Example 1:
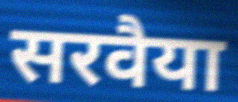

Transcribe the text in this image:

सरवैया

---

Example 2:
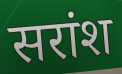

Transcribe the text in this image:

सरांश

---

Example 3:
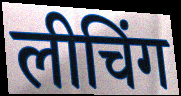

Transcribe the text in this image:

लीचिंग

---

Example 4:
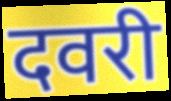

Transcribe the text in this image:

दवरी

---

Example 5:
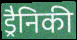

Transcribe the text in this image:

ड्रैनिकी